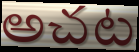
అచట